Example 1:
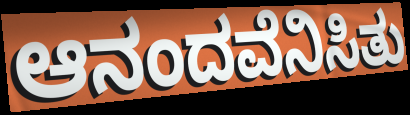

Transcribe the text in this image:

ಆನಂದವೆನಿಸಿತು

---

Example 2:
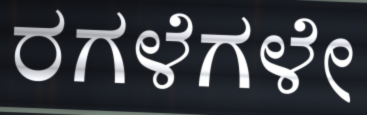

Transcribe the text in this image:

ರಗಳೆಗಳೇ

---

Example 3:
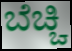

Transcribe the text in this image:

ಬೆಚ್ಚಿ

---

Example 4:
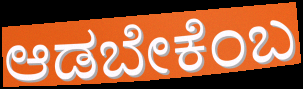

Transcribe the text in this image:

ಆಡಬೇಕೆಂಬ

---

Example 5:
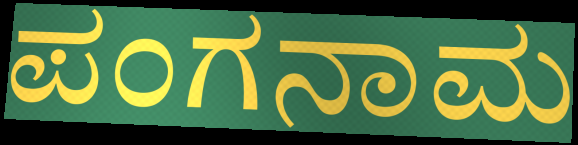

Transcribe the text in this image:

ಪಂಗನಾಮ